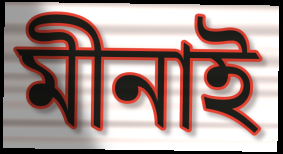
মীনাই